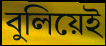
বুলিয়েই